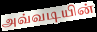
அவ்வடியின்